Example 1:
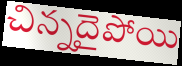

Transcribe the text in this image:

చిన్నదైపోయి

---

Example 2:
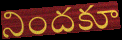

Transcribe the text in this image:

నిందకూ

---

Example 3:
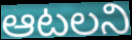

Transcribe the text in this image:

ఆటలని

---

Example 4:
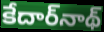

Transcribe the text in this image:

కేదార్‌నాథ్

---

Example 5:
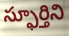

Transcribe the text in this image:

స్ఫూర్తిని